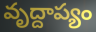
వృద్దాప్యం